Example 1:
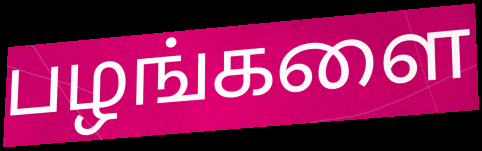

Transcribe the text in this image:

பழங்களை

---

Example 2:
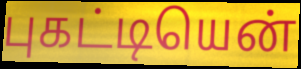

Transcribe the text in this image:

புகட்டியென்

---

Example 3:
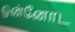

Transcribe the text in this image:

ஒன்னோட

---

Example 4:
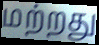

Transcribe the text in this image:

மற்றது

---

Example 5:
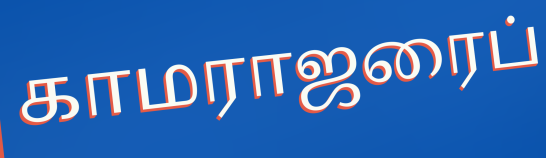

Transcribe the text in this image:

காமராஜரைப்